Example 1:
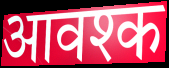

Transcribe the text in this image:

आवश्क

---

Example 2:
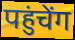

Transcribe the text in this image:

पहुंचेंग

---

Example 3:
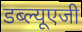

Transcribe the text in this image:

डब्ल्यूएजी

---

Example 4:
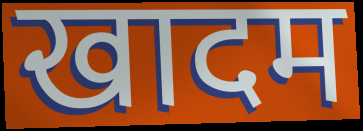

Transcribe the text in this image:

खादम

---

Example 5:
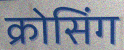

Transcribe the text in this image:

क्रोसिंग